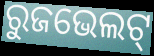
ରୁଜଭେଲଟ୍